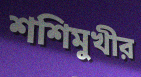
শশিমুখীর